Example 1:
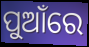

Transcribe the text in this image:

ପୁଆଁରେ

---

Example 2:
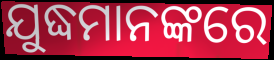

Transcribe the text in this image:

ଯୁଦ୍ଧମାନଙ୍କରେ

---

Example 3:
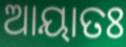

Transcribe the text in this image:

ଆୟାତଃ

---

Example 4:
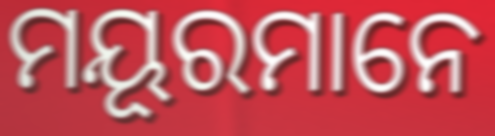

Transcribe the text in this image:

ମୟୂରମାନେ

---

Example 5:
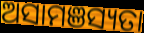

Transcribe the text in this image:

ଅସାମଞସ୍ୟତା